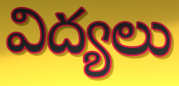
విద్యలు